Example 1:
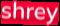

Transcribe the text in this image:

shrey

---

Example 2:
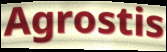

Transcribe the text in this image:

Agrostis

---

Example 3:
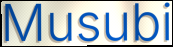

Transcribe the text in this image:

Musubi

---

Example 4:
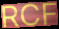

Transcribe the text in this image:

RCF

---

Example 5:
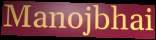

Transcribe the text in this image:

Manojbhai